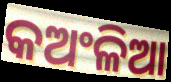
କଅଂଳିଆ